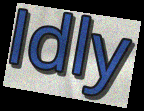
Idly